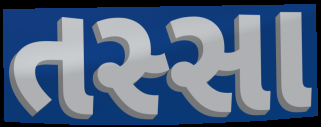
તસ્સા